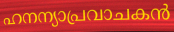
ഹനന്യാപ്രവാചകൻ